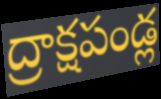
ద్రాక్షపండ్ల